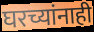
घरच्यांनाही